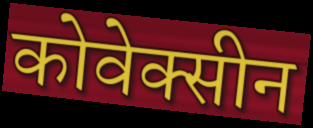
कोवेक्सीन